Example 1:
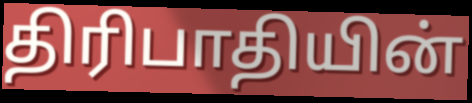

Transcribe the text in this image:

திரிபாதியின்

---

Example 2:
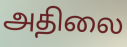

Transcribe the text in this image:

அதிலை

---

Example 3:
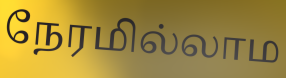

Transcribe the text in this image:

நேரமில்லாம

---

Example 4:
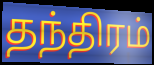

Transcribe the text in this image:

தந்திரம்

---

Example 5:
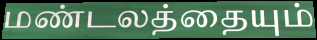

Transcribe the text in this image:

மண்டலத்தையும்